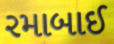
રમાબાઈ